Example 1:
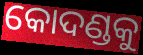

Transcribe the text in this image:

କୋଦଣ୍ଡକୁ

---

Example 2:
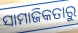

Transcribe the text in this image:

ସାମାଜିକତାରୁ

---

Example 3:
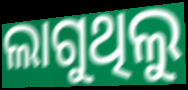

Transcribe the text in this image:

ଲାଗୁଥିଲୁ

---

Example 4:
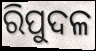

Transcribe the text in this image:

ରିପୁଦଳ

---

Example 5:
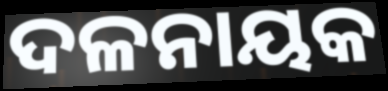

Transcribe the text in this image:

ଦଳନାୟକ